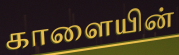
காளையின்